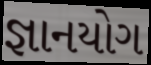
જ્ઞાનયોગ